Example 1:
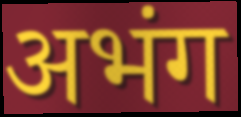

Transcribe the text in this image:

अभंग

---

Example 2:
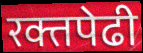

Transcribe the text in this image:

रक्तपेढी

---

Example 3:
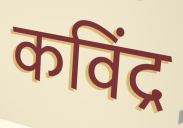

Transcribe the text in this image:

कविंद्र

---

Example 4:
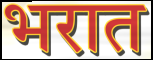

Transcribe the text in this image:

भरात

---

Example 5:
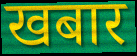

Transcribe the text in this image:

खबार